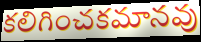
కలిగించకమానవు